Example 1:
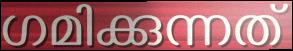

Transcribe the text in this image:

ഗമിക്കുന്നത്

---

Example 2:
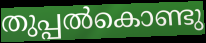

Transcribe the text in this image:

തുപ്പൽകൊണ്ടു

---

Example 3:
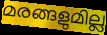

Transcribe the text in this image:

മരങ്ങളുമില്ല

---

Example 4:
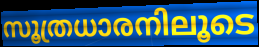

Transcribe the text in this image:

സൂത്രധാരനിലൂടെ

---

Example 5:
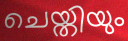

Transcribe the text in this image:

ചെയ്തിയും